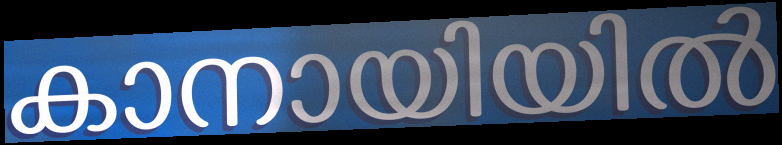
കാനായിയിൽ